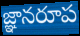
జ్ఞానరూప